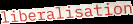
liberalisation